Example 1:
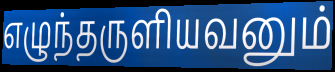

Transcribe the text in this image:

எழுந்தருளியவனும்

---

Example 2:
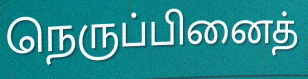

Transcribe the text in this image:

நெருப்பினைத்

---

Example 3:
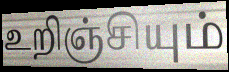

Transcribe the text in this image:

உறிஞ்சியும்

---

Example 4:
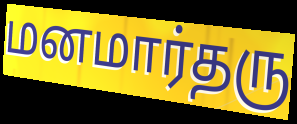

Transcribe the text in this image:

மனமார்தரு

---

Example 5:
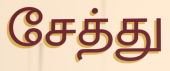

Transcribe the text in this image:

சேத்து